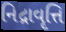
નિદ્રાવૃત્તિ